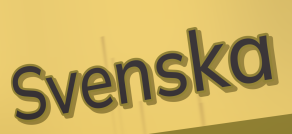
Svenska